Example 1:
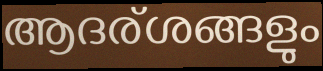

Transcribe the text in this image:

ആദര്ശങ്ങളും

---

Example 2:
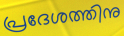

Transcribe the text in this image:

പ്രദേശത്തിനു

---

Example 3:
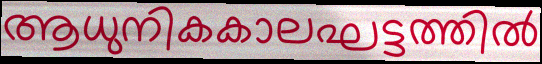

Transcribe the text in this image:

ആധുനികകാലഘട്ടത്തിൽ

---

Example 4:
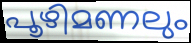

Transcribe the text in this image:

പൂഴിമണലും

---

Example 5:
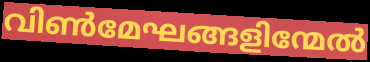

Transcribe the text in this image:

വിൺമേഘങ്ങളിന്മേൽ